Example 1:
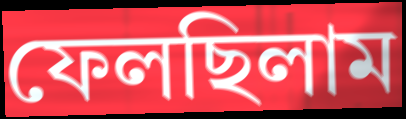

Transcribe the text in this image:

ফেলছিলাম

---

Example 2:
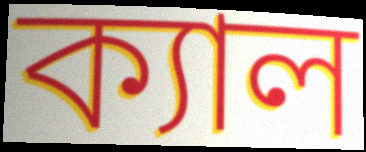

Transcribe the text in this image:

ক্যাল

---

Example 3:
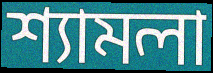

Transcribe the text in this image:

শ্যামলা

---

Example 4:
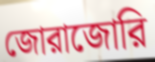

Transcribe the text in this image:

জোরাজোরি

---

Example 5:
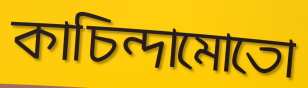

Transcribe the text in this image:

কাচিন্দামোতো